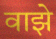
वाझे